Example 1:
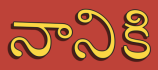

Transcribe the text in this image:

నానికి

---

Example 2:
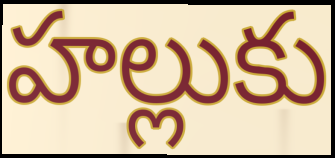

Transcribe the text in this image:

హల్లుకు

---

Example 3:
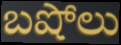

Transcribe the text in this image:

బషోలు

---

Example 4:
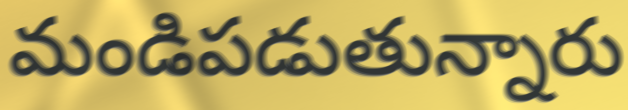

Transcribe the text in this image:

మండిపడుతున్నారు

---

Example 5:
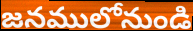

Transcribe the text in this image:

జనములోనుండి